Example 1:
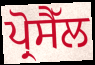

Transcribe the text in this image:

ਪ੍ਰੋਸੈੱਲ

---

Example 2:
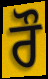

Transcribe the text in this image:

ਰੌ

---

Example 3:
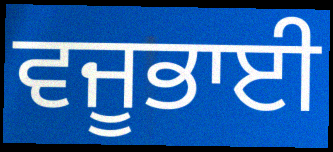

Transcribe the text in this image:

ਵਜੂਭਾਈ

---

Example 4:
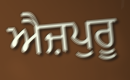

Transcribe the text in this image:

ਐਜ਼ਪੁਰੂ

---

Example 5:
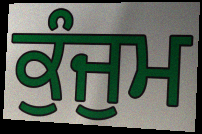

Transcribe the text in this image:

ਕੁੰਜੁਮ